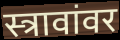
स्त्रावांवर